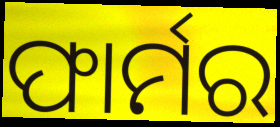
ଫାର୍ମର